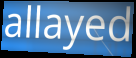
allayed